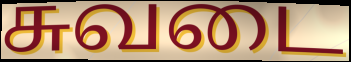
சுவடை